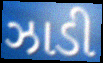
ઝાડી